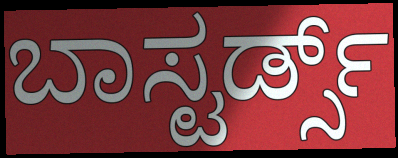
ಬಾಸ್ಟರ್ಡ್ಸ್